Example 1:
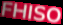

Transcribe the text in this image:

FHISO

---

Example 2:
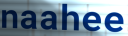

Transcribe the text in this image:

naahee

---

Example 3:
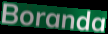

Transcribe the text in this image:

Boranda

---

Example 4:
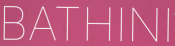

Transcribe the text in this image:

BATHINI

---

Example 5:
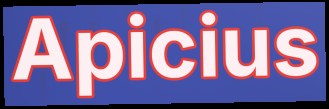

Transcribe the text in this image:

Apicius